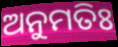
ଅନୁମତିଃ